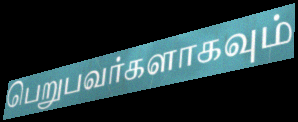
பெறுபவர்களாகவும்